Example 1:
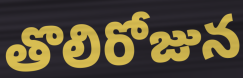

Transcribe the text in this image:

తొలిరోజున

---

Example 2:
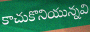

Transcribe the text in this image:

కాచుకొనియున్నవి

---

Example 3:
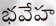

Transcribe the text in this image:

భవేహ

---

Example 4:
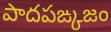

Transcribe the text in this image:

పాదపఙ్కజం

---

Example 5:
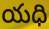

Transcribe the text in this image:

యధి